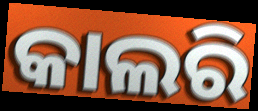
କାଲରି